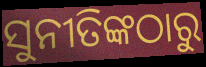
ସୁନୀତିଙ୍କଠାରୁ